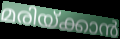
മരിയ്ക്കാൻ